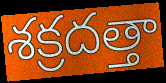
శక్రదత్తా